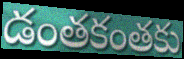
డంతకంతకు